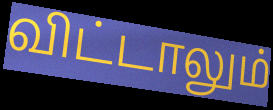
விட்டாலும்